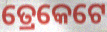
ତ୍ରେକେଟେ